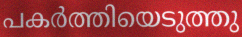
പകർത്തിയെടുത്തു